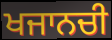
ਖਜਾਨਚੀ